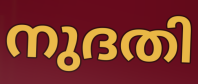
നുദതി